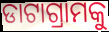
ଡାଟାଗ୍ରାମକୁ